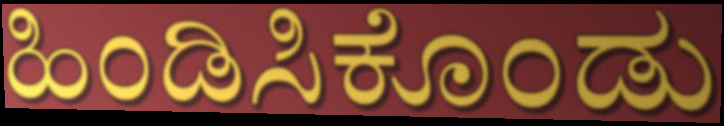
ಹಿಂಡಿಸಿಕೊಂಡು